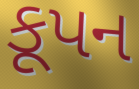
કૂપન